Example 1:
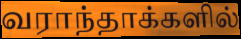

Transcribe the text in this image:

வராந்தாக்களில்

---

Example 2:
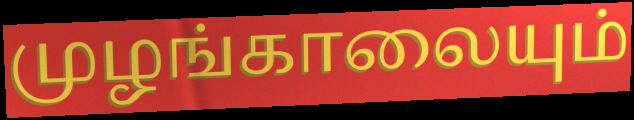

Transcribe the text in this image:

முழங்காலையும்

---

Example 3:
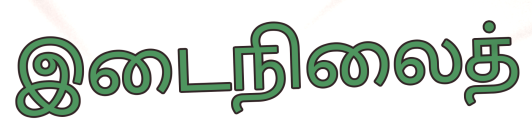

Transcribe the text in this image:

இடைநிலைத்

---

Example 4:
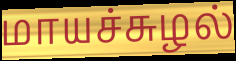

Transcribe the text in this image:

மாயச்சுழல்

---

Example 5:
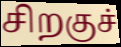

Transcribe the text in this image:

சிறகுச்